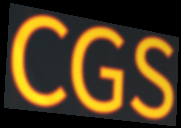
CGS